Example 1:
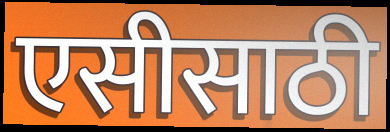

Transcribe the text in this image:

एसीसाठी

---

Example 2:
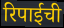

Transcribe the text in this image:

रिपाईची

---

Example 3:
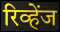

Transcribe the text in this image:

रिव्हेंज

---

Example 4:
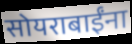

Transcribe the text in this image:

सोयराबाईंना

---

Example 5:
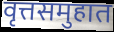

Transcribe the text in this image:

वृत्तसमुहात